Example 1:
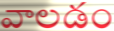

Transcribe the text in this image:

వాలడం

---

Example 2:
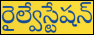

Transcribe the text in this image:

రైల్వేస్టేషన్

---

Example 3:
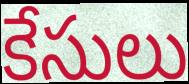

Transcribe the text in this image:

కేసులు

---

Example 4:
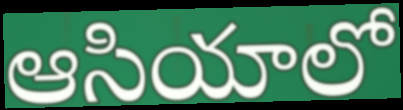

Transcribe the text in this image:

ఆసియాలో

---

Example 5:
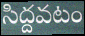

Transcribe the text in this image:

సిద్దవటం